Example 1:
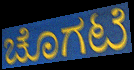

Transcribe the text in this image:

ಚೊಗಟೆ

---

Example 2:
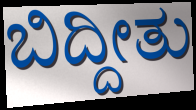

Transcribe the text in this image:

ಬಿದ್ದೀತು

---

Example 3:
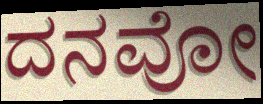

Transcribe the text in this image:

ದನವೋ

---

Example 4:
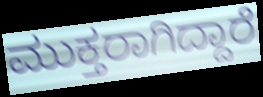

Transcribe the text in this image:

ಮುಕ್ತರಾಗಿದ್ದಾರೆ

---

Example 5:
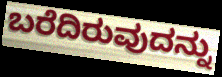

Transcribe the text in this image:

ಬರೆದಿರುವುದನ್ನು